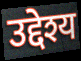
उद्देश्य